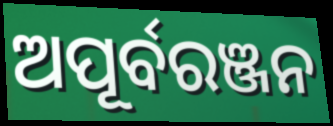
ଅପୂର୍ବରଞ୍ଜନ